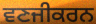
ਵਣਜੀਕਰਨ